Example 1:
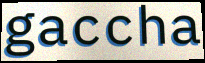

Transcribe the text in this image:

gaccha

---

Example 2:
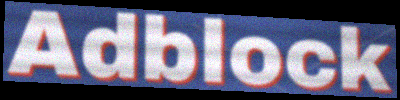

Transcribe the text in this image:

Adblock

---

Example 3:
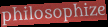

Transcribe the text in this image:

philosophize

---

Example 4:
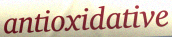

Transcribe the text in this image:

antioxidative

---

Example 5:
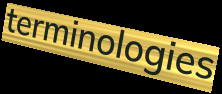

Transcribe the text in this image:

terminologies